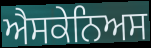
ਐਸਕੇਨਿਅਸ